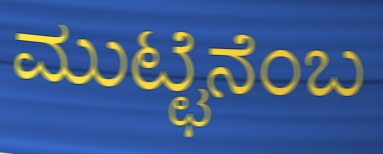
ಮುಟ್ಟೆನೆಂಬ